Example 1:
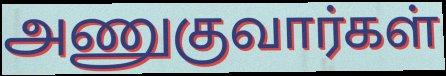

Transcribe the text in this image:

அணுகுவார்கள்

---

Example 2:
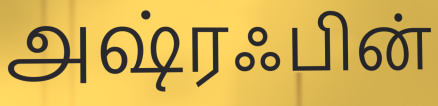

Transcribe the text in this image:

அஷ்ரஃபின்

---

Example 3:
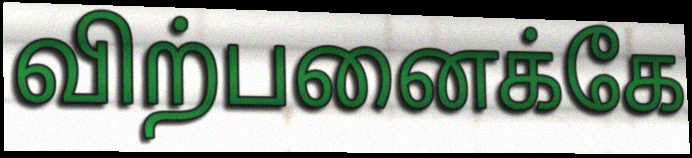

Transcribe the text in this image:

விற்பனைக்கே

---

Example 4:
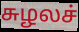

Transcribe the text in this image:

சுழலச்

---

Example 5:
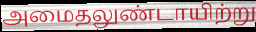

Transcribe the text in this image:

அமைதலுண்டாயிற்று